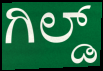
ಗಿಲ್ಡ್